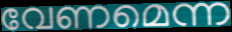
വേണമെന്ന